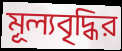
মূল্যবৃদ্ধির